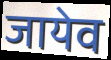
जायेव